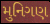
મુનિગણ